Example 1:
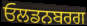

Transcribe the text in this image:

ਓਲਡਨਬਰਗ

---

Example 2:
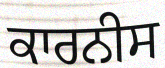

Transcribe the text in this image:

ਕਾਰਨੀਸ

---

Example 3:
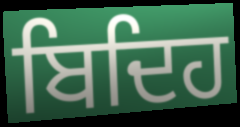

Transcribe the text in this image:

ਬਿਦਿਹ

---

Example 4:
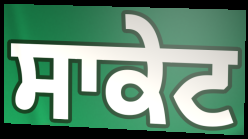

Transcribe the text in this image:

ਸਾਕੇਟ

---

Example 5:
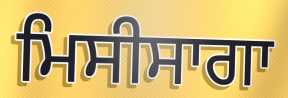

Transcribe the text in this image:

ਮਿਸੀਸਾਗਾ